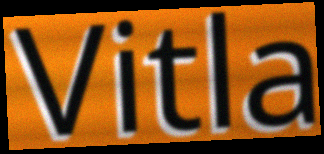
Vitla